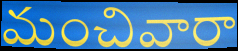
మంచివారా